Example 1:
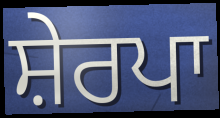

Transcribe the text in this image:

ਸ਼ੇਰਪਾ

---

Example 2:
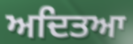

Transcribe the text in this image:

ਅਦਿਤਆ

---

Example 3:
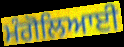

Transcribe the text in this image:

ਮੰਗੋਲਿਆਈ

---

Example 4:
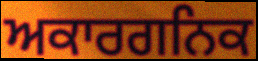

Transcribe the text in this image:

ਅਕਾਰਗਨਿਕ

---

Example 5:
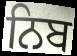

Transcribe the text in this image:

ਨਿਬ